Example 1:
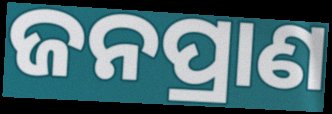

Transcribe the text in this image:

ଜନପ୍ରାଣ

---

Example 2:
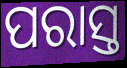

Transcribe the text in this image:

ପରାସ୍ତ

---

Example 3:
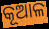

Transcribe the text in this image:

କୂଆଳ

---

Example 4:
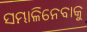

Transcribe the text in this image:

ସମ୍ଭାଳିନେବାକୁ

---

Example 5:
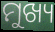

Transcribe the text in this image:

ମୁଖ୍ୟ